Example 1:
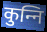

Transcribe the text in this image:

कुन्नि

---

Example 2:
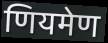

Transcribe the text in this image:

णियमेण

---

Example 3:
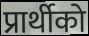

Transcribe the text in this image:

प्रार्थीको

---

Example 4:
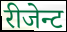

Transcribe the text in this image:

रीजेन्ट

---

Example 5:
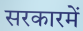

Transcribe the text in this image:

सरकारमें